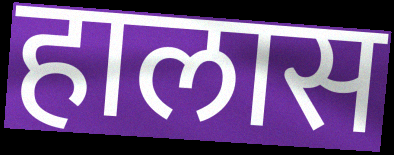
हालास